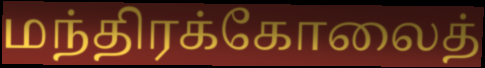
மந்திரக்கோலைத்